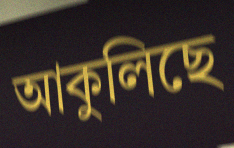
আকুলিছে